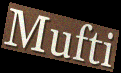
Mufti